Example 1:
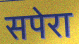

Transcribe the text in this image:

सपेरा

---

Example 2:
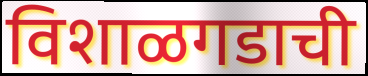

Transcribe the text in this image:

विशाळगडाची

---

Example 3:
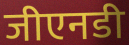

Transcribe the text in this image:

जीएनडी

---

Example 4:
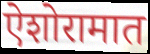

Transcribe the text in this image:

ऐशोरामात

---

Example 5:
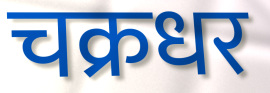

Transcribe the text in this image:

चक्रधर